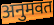
अनुमवत